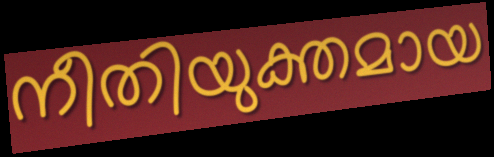
നീതിയുക്തമായ